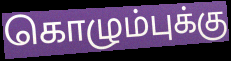
கொழும்புக்கு